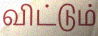
விட்டும்